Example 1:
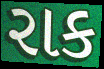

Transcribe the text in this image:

રાક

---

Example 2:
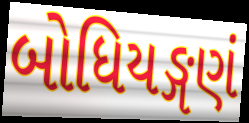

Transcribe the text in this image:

બોધિયઙ્ગણં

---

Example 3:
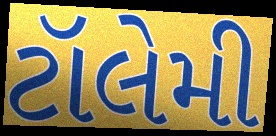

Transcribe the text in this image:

ટૉલેમી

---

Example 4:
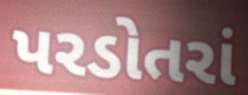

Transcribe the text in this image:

પરડોતરાં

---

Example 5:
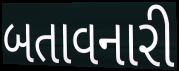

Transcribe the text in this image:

બતાવનારી